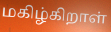
மகிழ்கிறாள்